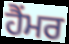
ਹੈਂਮਰ